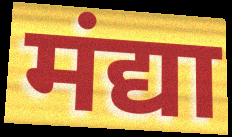
मंद्या